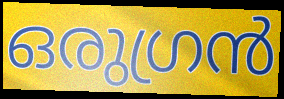
ഒരുഗ്രൻ